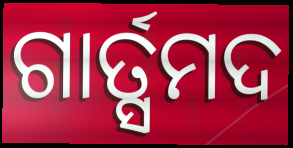
ଗାର୍ତ୍ସମଦ